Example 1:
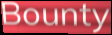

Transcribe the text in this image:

Bounty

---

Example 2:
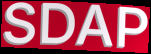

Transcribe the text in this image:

SDAP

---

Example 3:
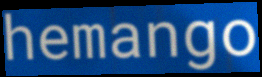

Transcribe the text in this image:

hemango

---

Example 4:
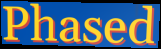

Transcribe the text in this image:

Phased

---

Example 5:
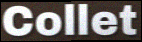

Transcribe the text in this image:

Collet